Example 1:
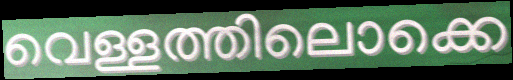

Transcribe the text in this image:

വെള്ളത്തിലൊക്കെ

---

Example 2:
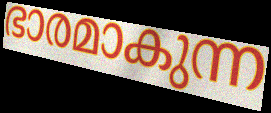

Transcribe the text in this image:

ഭാരമാകുന്ന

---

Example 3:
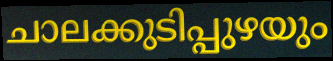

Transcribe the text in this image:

ചാലക്കുടിപ്പുഴയും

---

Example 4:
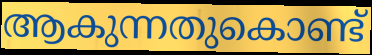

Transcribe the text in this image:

ആകുന്നതുകൊണ്ട്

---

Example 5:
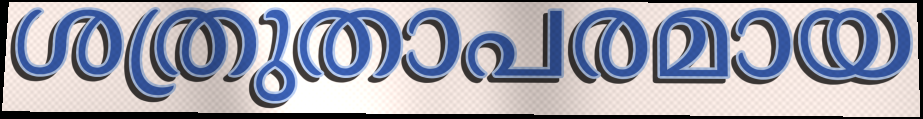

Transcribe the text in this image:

ശത്രുതാപരമായ